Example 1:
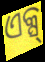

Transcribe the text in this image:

ଏକ୍ସ୍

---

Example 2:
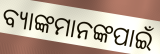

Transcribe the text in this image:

ବ୍ୟାଙ୍କମାନଙ୍କପାଇଁ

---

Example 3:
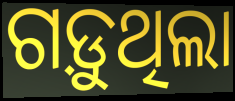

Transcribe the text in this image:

ଗଡ଼ୁଥିଲା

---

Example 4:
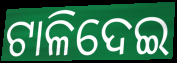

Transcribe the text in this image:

ଟାଳିଦେଇ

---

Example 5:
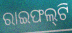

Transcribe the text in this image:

ରାଇଫଲ୍‍ଟି